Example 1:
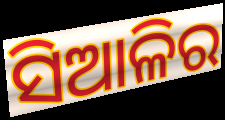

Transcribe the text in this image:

ସିଆଳିର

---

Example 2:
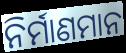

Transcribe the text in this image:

ନିର୍ମାଣମାନ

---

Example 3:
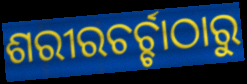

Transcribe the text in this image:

ଶରୀରଚର୍ଚ୍ଚାଠାରୁ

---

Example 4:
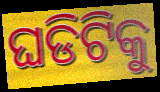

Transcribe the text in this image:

ଘଡିଟିକୁ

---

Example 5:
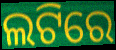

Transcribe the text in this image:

ଲଟିରେ